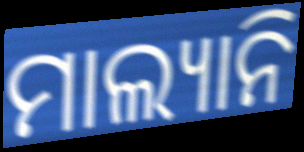
ମାଲ୍ୟାନି